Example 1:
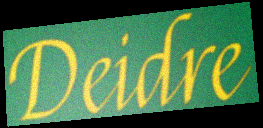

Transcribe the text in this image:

Deidre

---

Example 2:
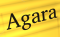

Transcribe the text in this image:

Agara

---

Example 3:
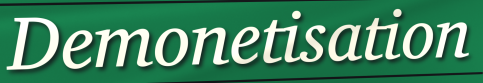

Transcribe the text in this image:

Demonetisation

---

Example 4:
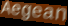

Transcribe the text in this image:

Aegean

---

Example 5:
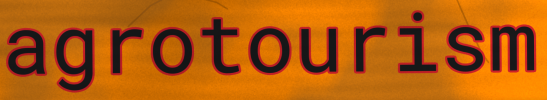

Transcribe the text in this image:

agrotourism